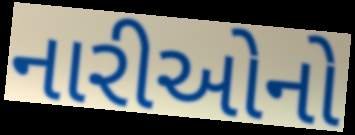
નારીઓનો